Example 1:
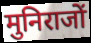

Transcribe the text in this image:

मुनिराजों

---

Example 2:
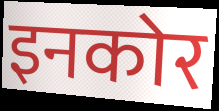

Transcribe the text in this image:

इनकोर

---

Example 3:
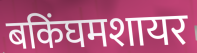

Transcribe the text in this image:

बकिंघमशायर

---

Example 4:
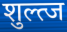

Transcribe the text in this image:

शुल्त्ज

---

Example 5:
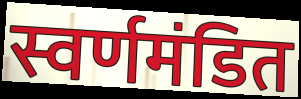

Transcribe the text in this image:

स्वर्णमंडित